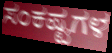
ಸಂಕಷ್ಟಗಳ